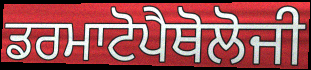
ਡਰਮਾਟੋਪੈਥੋਲੋਜੀ